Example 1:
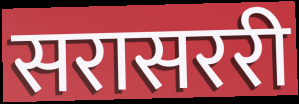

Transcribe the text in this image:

सरासररी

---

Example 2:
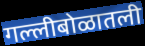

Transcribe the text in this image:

गल्लीबोळातली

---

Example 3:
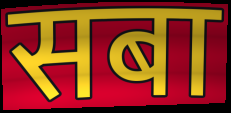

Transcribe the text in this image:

सबा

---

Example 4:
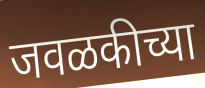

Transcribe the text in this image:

जवळकीच्या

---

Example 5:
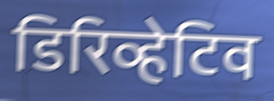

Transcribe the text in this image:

डिरिव्हेटिव